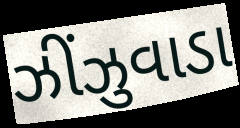
ઝીંઝુવાડા